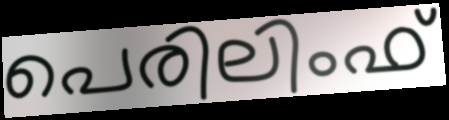
പെരിലിംഫ്